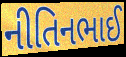
નીતિનભાઈ